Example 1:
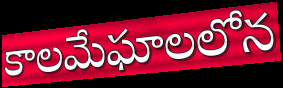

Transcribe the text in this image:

కాలమేఘాలలోన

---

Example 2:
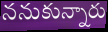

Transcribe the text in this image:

ననుకున్నారు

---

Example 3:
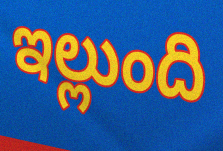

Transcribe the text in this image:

ఇల్లుంది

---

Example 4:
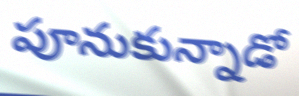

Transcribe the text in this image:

పూనుకున్నాడో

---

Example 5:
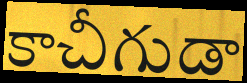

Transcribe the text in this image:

కాచీగుడా